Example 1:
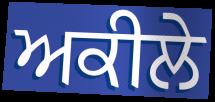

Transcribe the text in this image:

ਅਕੀਲੇ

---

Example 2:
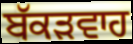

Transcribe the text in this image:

ਬੱਕੜਵਾਹ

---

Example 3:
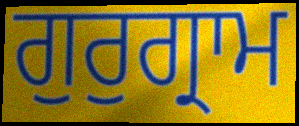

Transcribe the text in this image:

ਗੁਰੁਗ੍ਰਾਮ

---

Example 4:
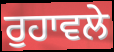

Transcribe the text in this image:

ਰੁਹਾਵਲੇ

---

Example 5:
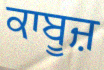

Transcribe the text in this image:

ਕਾਬੂਜ਼